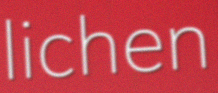
lichen